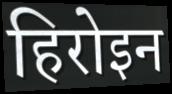
हिरोइन